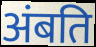
अंबति